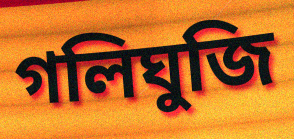
গলিঘুজি